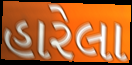
હારેલા